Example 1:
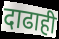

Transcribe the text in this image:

दाढाही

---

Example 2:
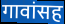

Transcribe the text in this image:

गावांसह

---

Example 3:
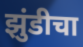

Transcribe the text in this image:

झुंडीचा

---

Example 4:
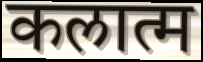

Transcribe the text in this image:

कलात्म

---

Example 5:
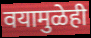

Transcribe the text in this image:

वयामुळेही